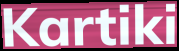
Kartiki